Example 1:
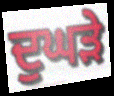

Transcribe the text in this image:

ਦੁਘੜੇ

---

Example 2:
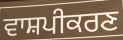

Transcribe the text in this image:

ਵਾਸ਼ਪੀਕਰਣ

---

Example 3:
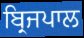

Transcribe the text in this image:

ਬ੍ਰਿਜਪਾਲ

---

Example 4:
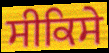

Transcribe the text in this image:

ਸੀਕਿਸੇ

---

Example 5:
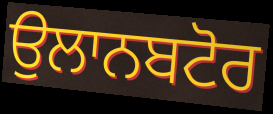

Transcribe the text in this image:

ਉਲਾਨਬਟੋਰ